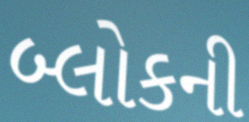
બ્લોકની